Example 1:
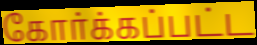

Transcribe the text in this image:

கோர்க்கப்பட்ட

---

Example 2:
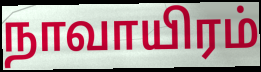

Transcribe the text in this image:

நாவாயிரம்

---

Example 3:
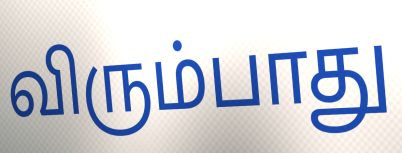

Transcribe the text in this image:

விரும்பாது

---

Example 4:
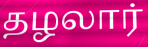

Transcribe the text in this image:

தழலார்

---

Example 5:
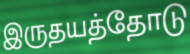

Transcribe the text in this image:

இருதயத்தோடு